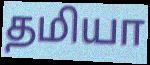
தமியா